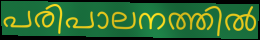
പരിപാലനത്തിൽ